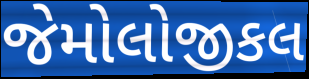
જેમોલોજીકલ